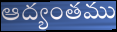
ఆద్యంతము